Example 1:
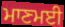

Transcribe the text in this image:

ਮਾਣਮਈ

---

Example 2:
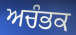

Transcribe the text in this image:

ਅਚੰਭਕ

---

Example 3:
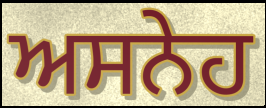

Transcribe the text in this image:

ਅਸਨੇਹ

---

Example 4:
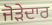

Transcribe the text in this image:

ਜੋੜੇਦਾਰ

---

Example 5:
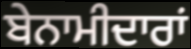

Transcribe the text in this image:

ਬੇਨਾਮੀਦਾਰਾਂ